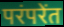
परंपरेंत